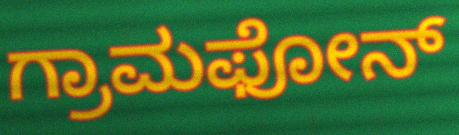
ಗ್ರಾಮಫೋನ್